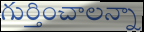
గుర్తించాలన్నా